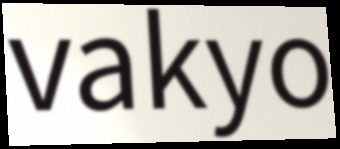
vakyo